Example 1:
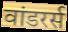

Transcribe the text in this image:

वांडरर्स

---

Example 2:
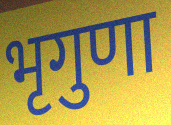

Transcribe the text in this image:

भृगुणा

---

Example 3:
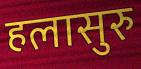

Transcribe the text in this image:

हलासुरु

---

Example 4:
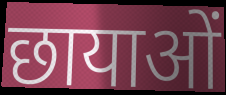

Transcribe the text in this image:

छायाओं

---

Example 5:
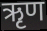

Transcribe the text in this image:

ऋृण